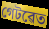
গেটৱেত